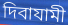
দিবাযামী